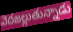
వెదజల్లుతున్నాడు